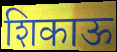
शिकाऊ